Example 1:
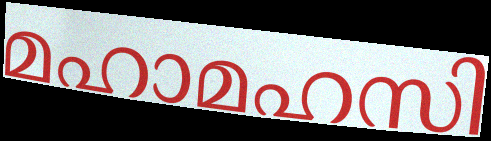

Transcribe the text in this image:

മഹാമഹസി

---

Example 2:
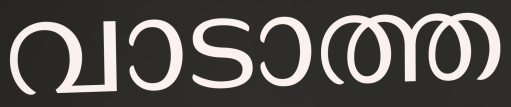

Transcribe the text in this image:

വാടാത്ത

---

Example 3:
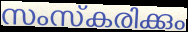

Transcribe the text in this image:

സംസ്‌കരിക്കും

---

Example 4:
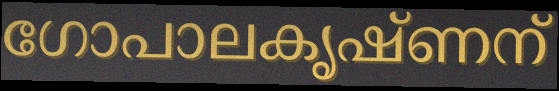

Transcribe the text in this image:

ഗോപാലകൃഷ്ണന്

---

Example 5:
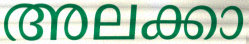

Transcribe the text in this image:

അലക്കാ